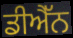
ਡੀਐੱਨ